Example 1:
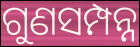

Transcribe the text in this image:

ଗୁଣସମ୍ପନ୍ନ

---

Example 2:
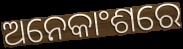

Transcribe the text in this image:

ଅନେକାଂଶରେ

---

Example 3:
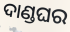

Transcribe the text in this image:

ଦାଣ୍ଡଘର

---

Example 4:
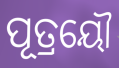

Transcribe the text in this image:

ପୂତ୍ରୟୌ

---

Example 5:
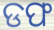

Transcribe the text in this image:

ଡଫ